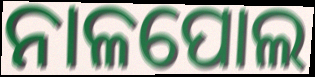
ନାଳପୋଲ